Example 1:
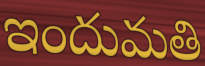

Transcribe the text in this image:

ఇందుమతి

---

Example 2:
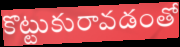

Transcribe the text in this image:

కొట్టుకురావడంతో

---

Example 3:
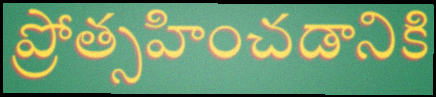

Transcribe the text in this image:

ప్రోత్సహించడానికి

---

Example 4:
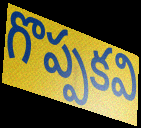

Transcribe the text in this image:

గొప్పకవి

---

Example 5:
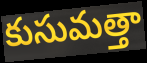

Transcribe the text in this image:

కుసుమత్తా